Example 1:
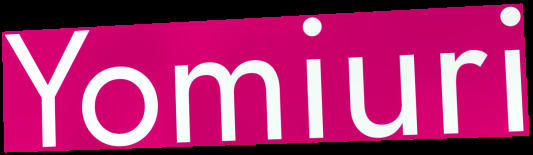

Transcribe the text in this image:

Yomiuri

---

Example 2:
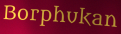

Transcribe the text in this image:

Borphukan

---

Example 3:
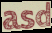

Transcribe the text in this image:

asd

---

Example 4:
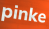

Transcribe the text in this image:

pinke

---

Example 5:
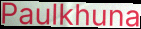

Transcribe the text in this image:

Paulkhuna